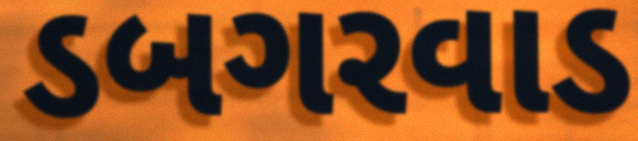
ડબગરવાડ